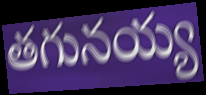
తగునయ్య